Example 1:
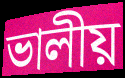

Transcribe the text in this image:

ভালীয়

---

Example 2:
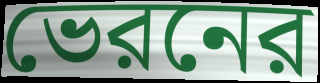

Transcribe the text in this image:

ভেরনের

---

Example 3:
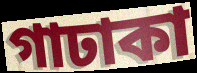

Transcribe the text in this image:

গাঢাকা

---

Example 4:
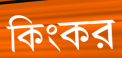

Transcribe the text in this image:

কিংকর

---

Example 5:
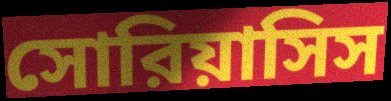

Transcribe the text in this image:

সোরিয়াসিস